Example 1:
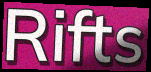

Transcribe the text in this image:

Rifts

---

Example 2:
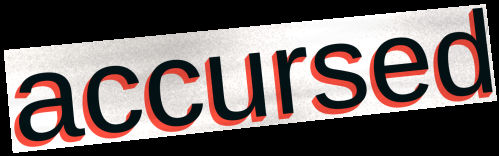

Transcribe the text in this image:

accursed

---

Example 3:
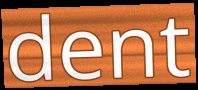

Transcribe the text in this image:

dent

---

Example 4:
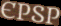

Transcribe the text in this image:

EPSP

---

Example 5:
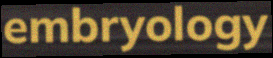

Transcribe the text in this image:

embryology